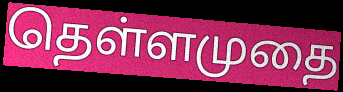
தெள்ளமுதை